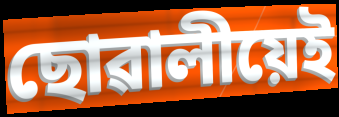
ছোৱালীয়েই